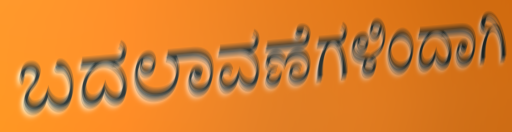
ಬದಲಾವಣೆಗಳಿಂದಾಗಿ